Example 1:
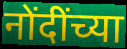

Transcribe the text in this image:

नोंदींच्या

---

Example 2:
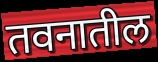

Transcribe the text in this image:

तवनातील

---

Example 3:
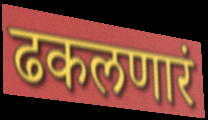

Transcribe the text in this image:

ढकलणारं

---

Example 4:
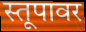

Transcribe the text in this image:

स्तूपावर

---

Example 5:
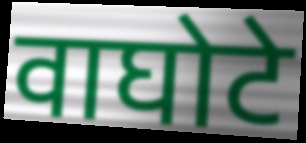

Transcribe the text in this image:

वाघोटे